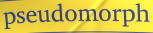
pseudomorph